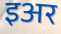
इअर